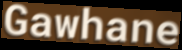
Gawhane